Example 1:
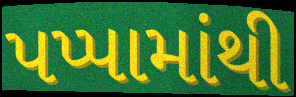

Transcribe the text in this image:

પપ્પામાંથી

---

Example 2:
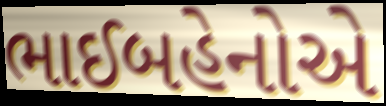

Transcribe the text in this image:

ભાઈબહેનોએ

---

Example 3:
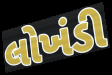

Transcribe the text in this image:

લોખંડી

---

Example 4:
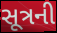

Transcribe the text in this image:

સૂત્રની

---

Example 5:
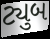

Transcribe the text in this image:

ટ્યુબ